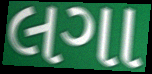
લગા